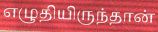
எழுதியிருந்தான்